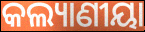
କଲ୍ୟାଣୀୟା